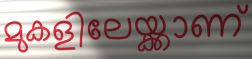
മുകളിലേയ്ക്കാണ്